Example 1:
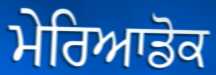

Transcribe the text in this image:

ਮੇਰਿਆਡੋਕ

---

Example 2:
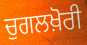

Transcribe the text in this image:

ਚੁਗਲਖ਼ੋਰੀ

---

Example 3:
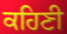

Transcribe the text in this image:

ਕਹਿਣੀ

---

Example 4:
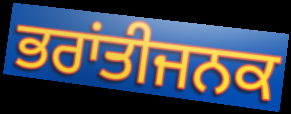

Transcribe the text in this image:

ਭਰਾਂਤੀਜਨਕ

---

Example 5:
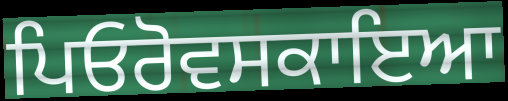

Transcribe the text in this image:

ਪਿਓਰੋਵਸਕਾਇਆ